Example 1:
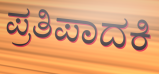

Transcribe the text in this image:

ಪ್ರತಿಪಾದಕಿ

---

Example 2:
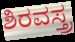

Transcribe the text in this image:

ಶಿರವಸ್ತ್ರ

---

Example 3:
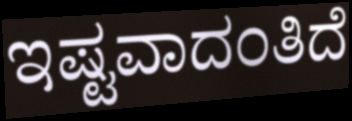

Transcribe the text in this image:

ಇಷ್ಟವಾದಂತಿದೆ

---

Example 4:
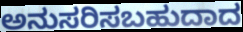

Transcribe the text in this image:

ಅನುಸರಿಸಬಹುದಾದ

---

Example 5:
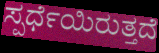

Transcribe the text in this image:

ಸ್ಪರ್ಧೆಯಿರುತ್ತದೆ